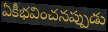
ఏకీభవించనప్పుడు